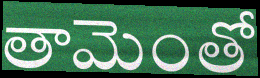
తామెంతో